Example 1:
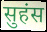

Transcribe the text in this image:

सुहंस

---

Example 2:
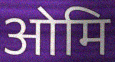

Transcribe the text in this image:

ओमि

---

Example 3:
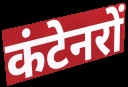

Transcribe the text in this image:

कंटेनरों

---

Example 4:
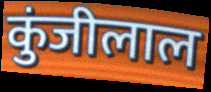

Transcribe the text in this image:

कुंजीलाल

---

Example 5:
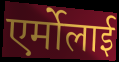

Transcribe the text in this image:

एर्मोलाई